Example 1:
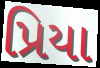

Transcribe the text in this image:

પ્રિયા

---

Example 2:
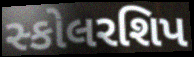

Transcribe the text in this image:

સ્કોલરશિપ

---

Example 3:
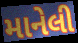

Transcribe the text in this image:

માનેલી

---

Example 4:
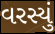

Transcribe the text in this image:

વરસ્યું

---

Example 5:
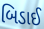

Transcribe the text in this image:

બિડાઈ